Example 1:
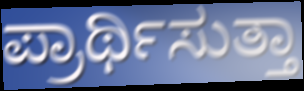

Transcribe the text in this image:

ಪ್ರಾರ್ಥಿಸುತ್ತಾ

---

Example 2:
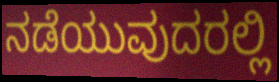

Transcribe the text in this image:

ನಡೆಯುವುದರಲ್ಲಿ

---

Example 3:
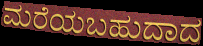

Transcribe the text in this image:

ಮರೆಯಬಹುದಾದ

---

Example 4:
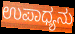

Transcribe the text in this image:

ಉಪಾಧ್ಯನು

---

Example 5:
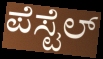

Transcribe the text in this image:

ಪೆಸ್ಟೆಲ್